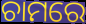
ଚାମରେ